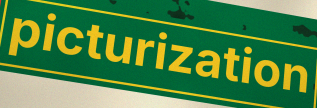
picturization